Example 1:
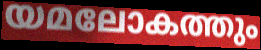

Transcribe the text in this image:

യമലോകത്തും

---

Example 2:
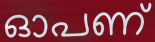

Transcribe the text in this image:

ഓപണ്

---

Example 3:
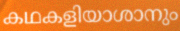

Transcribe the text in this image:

കഥകളിയാശാനും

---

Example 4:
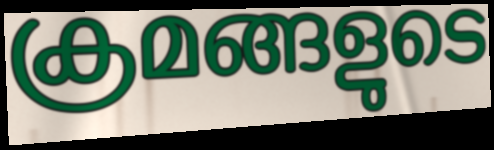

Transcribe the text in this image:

ക്രമങ്ങളുടെ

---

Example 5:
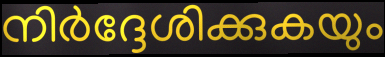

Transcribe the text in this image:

നിർദ്ദേശിക്കുകയും